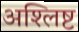
अश्लिष्ट